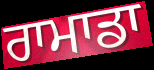
ਰਾਮਾਡਾ